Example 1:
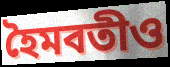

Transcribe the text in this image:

হৈমবতীও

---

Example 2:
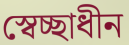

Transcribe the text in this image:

স্বেচ্ছাধীন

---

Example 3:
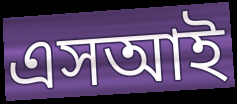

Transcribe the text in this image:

এসআই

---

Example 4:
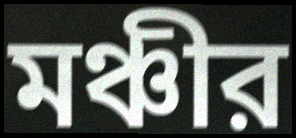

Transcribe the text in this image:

মঞ্চীর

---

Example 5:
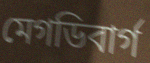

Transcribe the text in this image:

মেগডিবার্গ